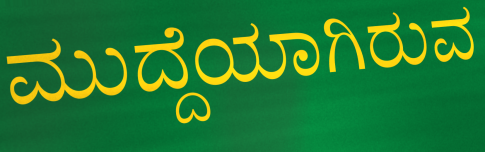
ಮುದ್ದೆಯಾಗಿರುವ